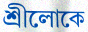
শ্রীলোকে